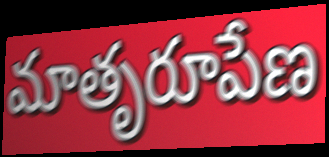
మాతృరూపేణ